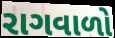
રાગવાળો